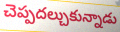
చెప్పదల్చుకున్నాడు